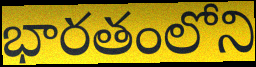
భారతంలోని